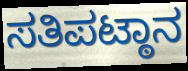
ಸತಿಪಟ್ಠಾನ